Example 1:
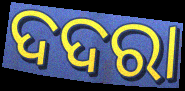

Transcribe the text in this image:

ଦଦରା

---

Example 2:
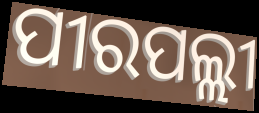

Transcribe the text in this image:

ପୀରପଲ୍ଲୀ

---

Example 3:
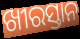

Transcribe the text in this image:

ଖୀରସ୍ତାନ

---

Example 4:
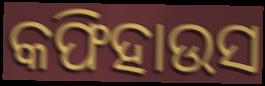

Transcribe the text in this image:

କଫିହାଉସ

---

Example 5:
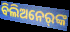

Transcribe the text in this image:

ବିଲିଅନେର୍‌ଙ୍କ